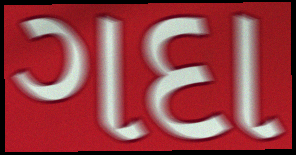
ગદા